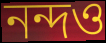
নন্দও